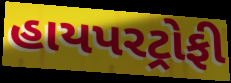
હાયપરટ્રોફી